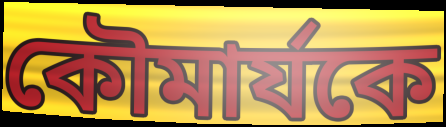
কৌমার্যকে